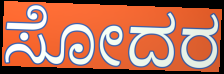
ಸೋದರ